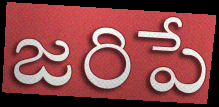
జరిపే